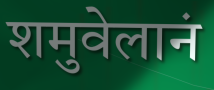
शमुवेलानं